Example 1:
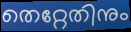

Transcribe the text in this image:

തെറ്റേതിനും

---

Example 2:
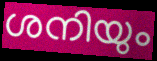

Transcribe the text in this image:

ശനിയും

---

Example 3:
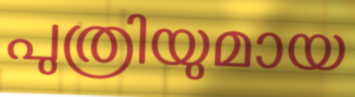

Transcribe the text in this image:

പുത്രിയുമായ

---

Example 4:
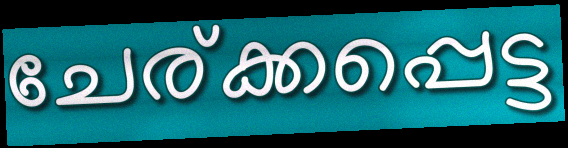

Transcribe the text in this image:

ചേര്ക്കപ്പെട്ട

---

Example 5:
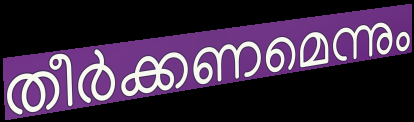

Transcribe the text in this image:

തീർക്കണമെന്നും